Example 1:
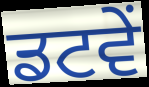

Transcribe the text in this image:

ਡਟਵੇਂ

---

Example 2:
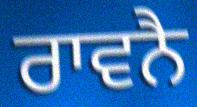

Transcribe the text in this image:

ਰਾਵਨੈ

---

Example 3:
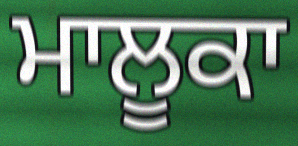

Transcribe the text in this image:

ਮਾਲੂਕਾ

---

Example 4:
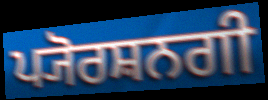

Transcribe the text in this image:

ਪ੍ਯੋਰਸ਼ਨਗੀ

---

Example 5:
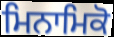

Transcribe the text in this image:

ਮਿਨਾਮਿਕੋ